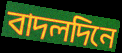
বাদলদিনে